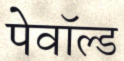
पेवॉल्ड